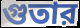
গুতার